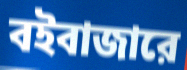
বইবাজারে